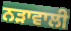
ਨੜਾਵਾਲੀ